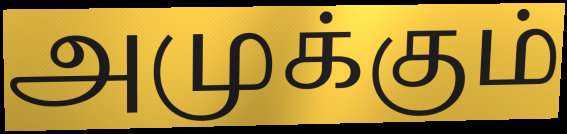
அமுக்கும்